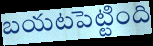
బయటపెట్టింది